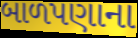
બાળપણાના